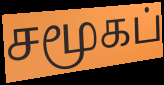
சமூகப்